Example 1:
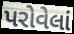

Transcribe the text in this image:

પરોવેલાં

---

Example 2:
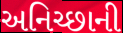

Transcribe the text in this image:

અનિચ્છાની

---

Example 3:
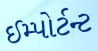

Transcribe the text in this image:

ઈમ્પોર્ટન્ટ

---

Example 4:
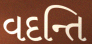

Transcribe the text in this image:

વદન્તિ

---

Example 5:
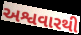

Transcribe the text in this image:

અશ્વવારથી